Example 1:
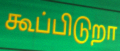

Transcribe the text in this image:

கூப்பிடுறா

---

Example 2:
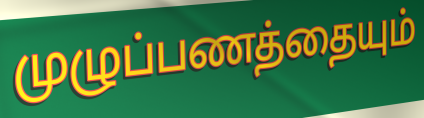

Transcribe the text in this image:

முழுப்பணத்தையும்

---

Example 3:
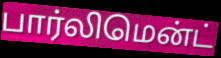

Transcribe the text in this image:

பார்லிமென்ட்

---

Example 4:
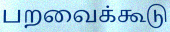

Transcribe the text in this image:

பறவைக்கூடு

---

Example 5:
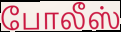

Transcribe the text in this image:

போலீஸ்